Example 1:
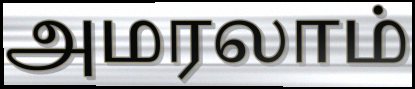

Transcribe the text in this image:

அமரலாம்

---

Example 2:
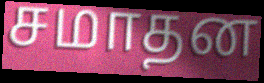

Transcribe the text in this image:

சமாதன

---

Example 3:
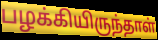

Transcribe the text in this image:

பழக்கியிருந்தாள்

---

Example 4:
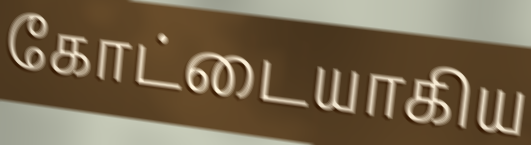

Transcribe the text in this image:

கோட்டையாகிய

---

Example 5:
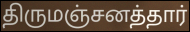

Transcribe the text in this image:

திருமஞ்சனத்தார்